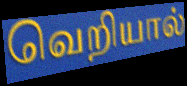
வெறியால்